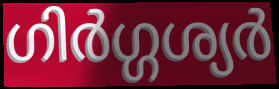
ഗിർഗ്ഗശ്യർ